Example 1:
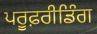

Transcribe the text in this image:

ਪਰੂਫ਼ਰੀਡਿੰਗ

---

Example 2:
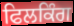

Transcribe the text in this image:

ਫਿਲਕਿੰਗ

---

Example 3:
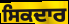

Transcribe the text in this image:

ਸਿਕਦਾਰ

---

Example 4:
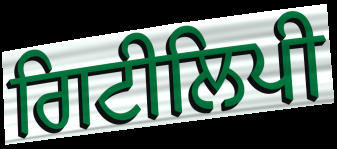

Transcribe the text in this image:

ਗਿਟੀਲਿਪੀ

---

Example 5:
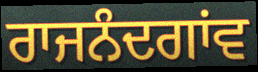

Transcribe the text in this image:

ਰਾਜਨੰਦਗਾਂਵ